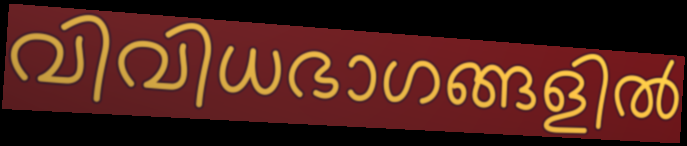
വിവിധഭാഗങ്ങളിൽ